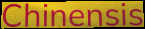
Chinensis